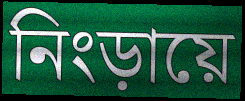
নিংড়ায়ে